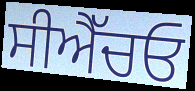
ਸੀਐੱਚਓ